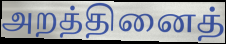
அறத்தினைத்